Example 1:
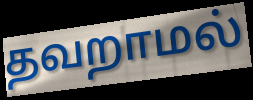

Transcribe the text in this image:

தவறாமல்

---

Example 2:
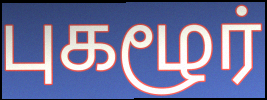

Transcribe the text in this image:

புகழூர்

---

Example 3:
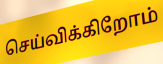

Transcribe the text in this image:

செய்விக்கிறோம்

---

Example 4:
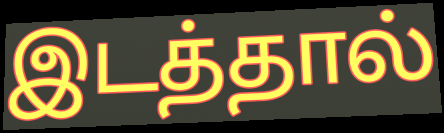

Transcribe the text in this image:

இடத்தால்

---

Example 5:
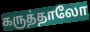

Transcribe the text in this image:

கருத்தாலோ